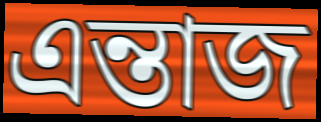
এন্তাজ